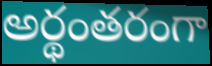
అర్థంతరంగా